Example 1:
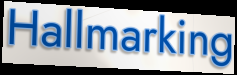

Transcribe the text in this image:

Hallmarking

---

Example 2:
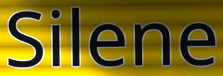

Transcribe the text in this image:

Silene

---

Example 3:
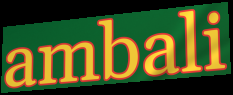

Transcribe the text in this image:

ambali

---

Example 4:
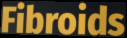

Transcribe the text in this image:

Fibroids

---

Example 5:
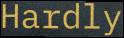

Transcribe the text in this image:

Hardly